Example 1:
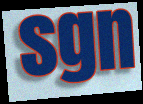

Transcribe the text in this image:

sgn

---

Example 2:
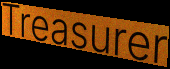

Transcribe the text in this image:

Treasurer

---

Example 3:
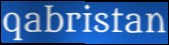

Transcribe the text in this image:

qabristan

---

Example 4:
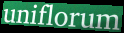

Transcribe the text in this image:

uniflorum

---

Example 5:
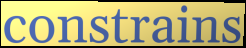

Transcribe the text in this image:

constrains